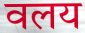
वलय